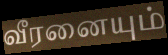
வீரனையும்